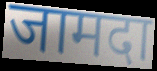
जामदा